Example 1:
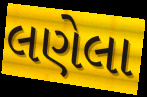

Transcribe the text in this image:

લણેલા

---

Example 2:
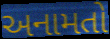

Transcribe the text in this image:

અનામતો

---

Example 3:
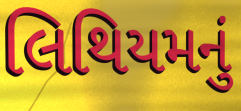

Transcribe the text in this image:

લિથિયમનું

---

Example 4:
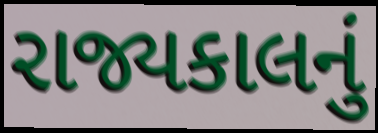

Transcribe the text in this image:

રાજ્યકાલનું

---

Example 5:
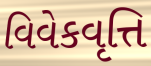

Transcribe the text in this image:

વિવેકવૃત્તિ